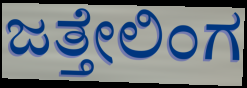
ಜತ್ತೇಲಿಂಗ